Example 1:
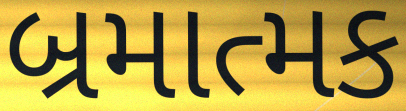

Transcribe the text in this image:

બ્રમાત્મક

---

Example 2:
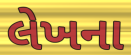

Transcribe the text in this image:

લેખના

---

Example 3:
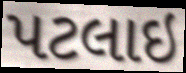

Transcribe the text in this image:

પટલાઇ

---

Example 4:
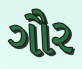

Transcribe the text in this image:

ગૌર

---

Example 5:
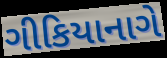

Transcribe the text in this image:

ગીકિયાનાગે